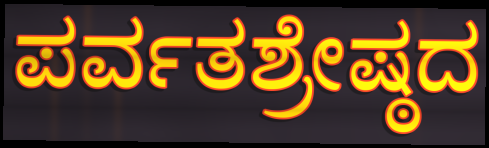
ಪರ್ವತಶ್ರೇಷ್ಠದ